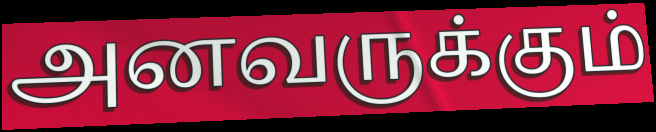
அனவருக்கும்